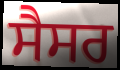
ਸੈਸਰ